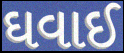
ઘવાઈ